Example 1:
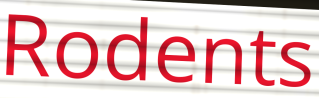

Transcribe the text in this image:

Rodents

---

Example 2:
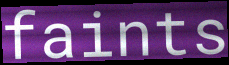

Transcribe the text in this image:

faints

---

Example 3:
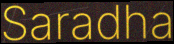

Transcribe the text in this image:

Saradha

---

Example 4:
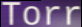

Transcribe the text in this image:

Torr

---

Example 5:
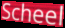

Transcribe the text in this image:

Scheel